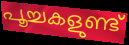
പൂച്ചകളുണ്ട്